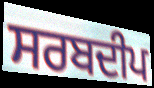
ਸਰਬਦੀਪ